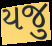
યજુ